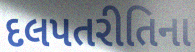
દલપતરીતિના